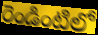
రెండింటిలో